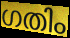
ഗതിം